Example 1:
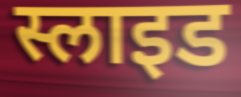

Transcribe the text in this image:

स्लाइड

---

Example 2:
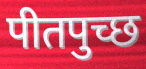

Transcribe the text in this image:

पीतपुच्छ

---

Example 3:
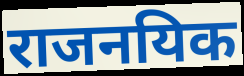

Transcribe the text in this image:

राजनयिक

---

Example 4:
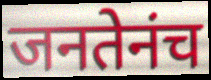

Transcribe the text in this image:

जनतेनंच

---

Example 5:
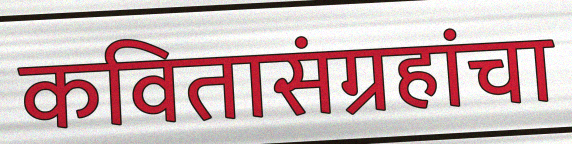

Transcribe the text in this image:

कवितासंग्रहांचा